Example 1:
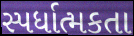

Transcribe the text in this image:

સ્પર્ધાત્મકતા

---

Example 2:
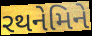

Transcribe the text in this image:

રથનેમિને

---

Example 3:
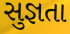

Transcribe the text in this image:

સુજ્ઞતા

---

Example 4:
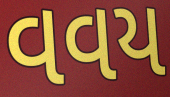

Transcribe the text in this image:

વવય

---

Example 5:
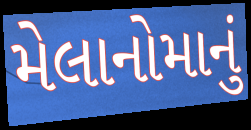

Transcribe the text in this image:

મેલાનોમાનું